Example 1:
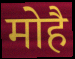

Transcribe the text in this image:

मोहै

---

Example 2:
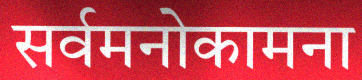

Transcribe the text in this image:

सर्वमनोकामना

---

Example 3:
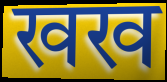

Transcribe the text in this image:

खख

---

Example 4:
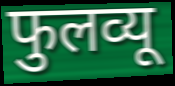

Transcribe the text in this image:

फुलव्यू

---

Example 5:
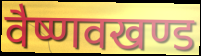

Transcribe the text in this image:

वैष्णवखण्ड